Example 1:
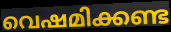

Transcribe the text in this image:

വെഷമിക്കണ്ട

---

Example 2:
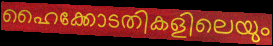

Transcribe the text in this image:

ഹൈക്കോടതികളിലെയും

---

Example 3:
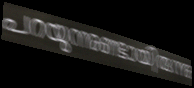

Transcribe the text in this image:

പറയുന്നുണ്ടായിരുന്നു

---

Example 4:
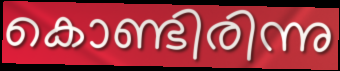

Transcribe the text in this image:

കൊണ്ടിരിന്നു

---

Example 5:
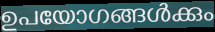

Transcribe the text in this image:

ഉപയോഗങ്ങൾക്കും